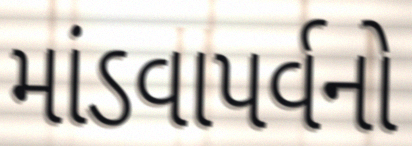
માંડવાપર્વનો